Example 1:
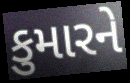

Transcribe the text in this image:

કુમારને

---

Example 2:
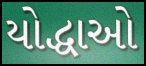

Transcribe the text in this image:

યોદ્ધાઓ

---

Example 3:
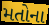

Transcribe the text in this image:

મતોના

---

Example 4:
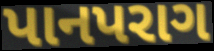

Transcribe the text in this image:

પાનપરાગ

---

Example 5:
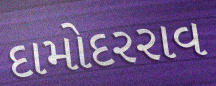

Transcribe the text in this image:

દામોદરરાવ